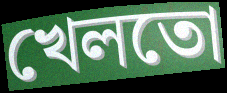
খেলতো